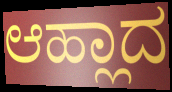
ಆಹ್ಲಾದ